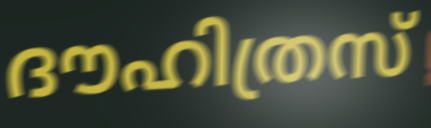
ദൗഹിത്രസ്